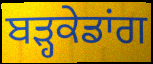
ਬੜ੍ਹਕੇਡਾਂਗ